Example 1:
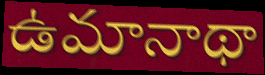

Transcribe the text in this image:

ఉమానాథా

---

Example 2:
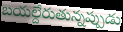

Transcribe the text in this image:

బయల్దేరుతున్నప్పుడు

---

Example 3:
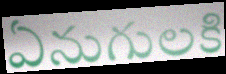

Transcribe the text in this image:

ఏనుగులకి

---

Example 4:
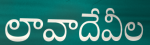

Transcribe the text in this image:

లావాదేవీల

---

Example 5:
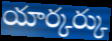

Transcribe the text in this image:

యార్కర్కు